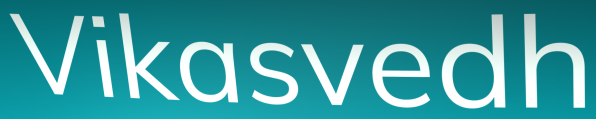
Vikasvedh